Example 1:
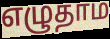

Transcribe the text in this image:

எழுதாம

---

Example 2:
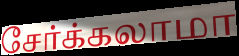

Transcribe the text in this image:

சேர்க்கலாமா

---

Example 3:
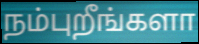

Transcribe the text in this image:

நம்புறீங்களா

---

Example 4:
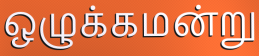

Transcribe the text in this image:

ஒழுக்கமன்று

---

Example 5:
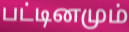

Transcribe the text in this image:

பட்டினமும்